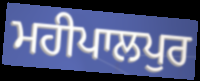
ਮਹੀਪਾਲਪੁਰ